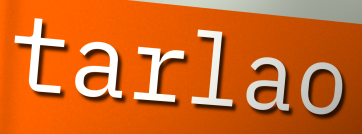
tarlao